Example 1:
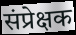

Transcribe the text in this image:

संप्रेक्षक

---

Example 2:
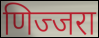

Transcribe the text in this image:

णिज्जरा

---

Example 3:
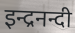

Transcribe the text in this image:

इन्द्रनन्दी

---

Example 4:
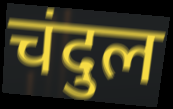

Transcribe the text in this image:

चंदुल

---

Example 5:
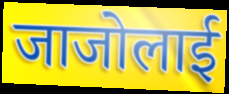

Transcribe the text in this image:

जाजोलाई